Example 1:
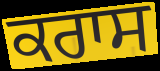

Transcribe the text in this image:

ਕਰਾਸ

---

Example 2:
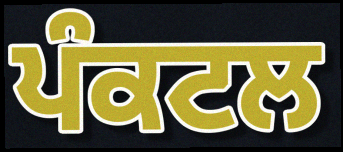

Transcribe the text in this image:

ਪੰਕਟਲ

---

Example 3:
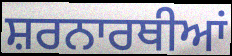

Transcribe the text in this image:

ਸ਼ਰਨਾਰਥੀਆਂ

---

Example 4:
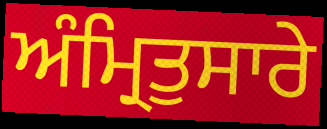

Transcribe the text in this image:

ਅੰਮ੍ਰਿਤੁਸਾਰੇ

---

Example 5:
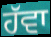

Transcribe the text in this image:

ਹੱਵਾ